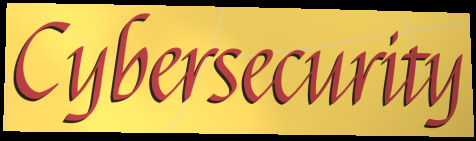
Cybersecurity